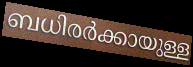
ബധിരർക്കായുള്ള